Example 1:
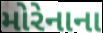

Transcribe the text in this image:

મોરેનાના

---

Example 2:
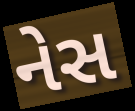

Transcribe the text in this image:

નેસ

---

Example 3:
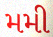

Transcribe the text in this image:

મમી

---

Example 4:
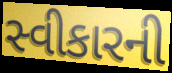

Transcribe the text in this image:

સ્વીકારની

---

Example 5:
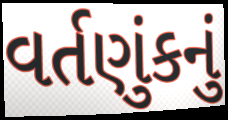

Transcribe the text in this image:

વર્તણુંકનું